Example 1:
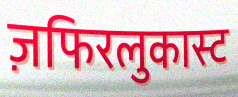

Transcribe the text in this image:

ज़फिरलुकास्ट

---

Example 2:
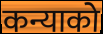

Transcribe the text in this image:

कन्याको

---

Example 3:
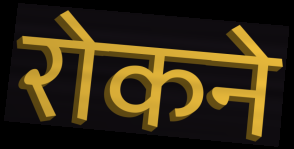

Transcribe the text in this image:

रोकने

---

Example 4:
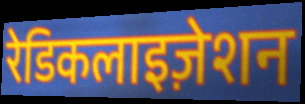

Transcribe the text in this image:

रेडिकलाइज़ेशन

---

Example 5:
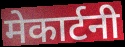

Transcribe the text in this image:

मेकार्टनी